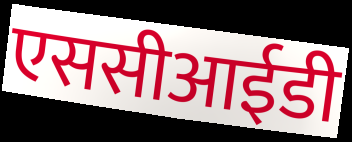
एससीआईडी